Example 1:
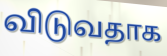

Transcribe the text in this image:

விடுவதாக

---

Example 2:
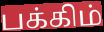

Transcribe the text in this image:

பக்கிம்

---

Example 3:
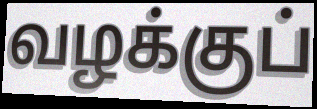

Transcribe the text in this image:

வழக்குப்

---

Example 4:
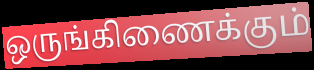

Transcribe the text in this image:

ஒருங்கிணைக்கும்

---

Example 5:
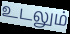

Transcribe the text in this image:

உடலும்